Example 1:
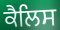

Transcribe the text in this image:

ਕੈਲਿਸ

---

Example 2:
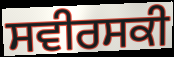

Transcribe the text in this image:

ਸਵੀਰਸਕੀ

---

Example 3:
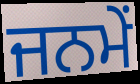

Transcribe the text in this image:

ਜਨਮੇਂ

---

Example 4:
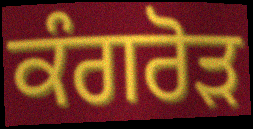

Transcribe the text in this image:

ਕੰਗਰੋੜ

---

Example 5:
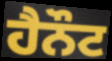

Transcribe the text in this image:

ਹੈਨੌਟ